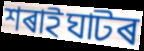
শৰাইঘাটৰ